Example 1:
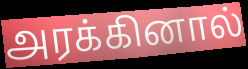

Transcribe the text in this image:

அரக்கினால்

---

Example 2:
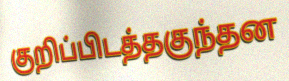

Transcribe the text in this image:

குறிப்பிடத்தகுந்தன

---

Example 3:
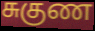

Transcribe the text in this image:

சுகுண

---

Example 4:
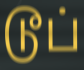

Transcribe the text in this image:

டூப்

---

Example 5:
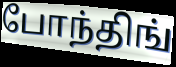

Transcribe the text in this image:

போந்திங்